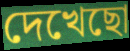
দেখেছো